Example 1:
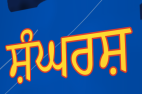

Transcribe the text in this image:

ਸ਼ੰਘਰਸ਼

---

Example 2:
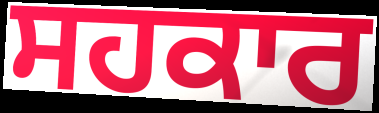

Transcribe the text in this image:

ਸਹਕਾਰ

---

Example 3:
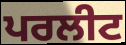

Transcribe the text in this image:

ਪਰਲੀਟ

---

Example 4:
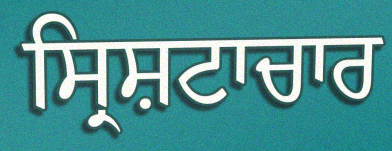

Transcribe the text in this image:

ਸ੍ਰਿਸ਼ਟਾਚਾਰ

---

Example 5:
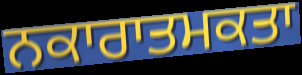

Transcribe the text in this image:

ਨਕਾਰਾਤਮਕਤਾ